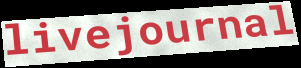
livejournal